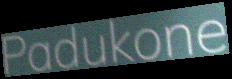
Padukone